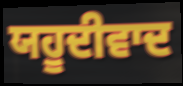
ਯਹੂਦੀਵਾਦ